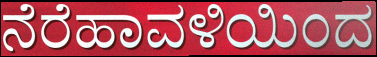
ನೆರೆಹಾವಳಿಯಿಂದ